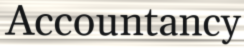
Accountancy